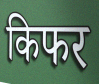
किफर